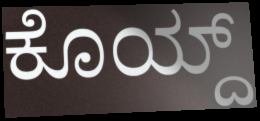
ಕೊಯ್ದ್